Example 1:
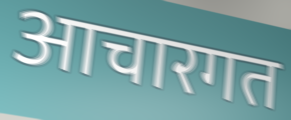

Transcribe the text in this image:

आचारगत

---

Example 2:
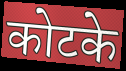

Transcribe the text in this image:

कोटके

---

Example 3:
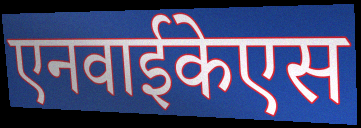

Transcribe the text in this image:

एनवाईकेएस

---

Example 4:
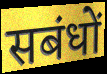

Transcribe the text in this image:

सबंधों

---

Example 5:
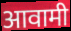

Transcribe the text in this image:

आवामी